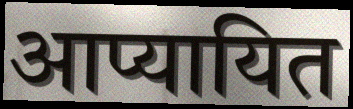
आप्यायित